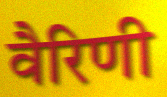
वैरिणी